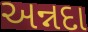
અન્નદા